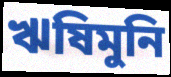
ঋষিমুনি